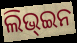
ଲିଭ୍ଇନ